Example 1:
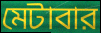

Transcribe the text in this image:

মেটাবার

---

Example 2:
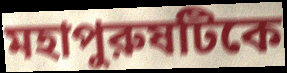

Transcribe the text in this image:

মহাপুরুষটিকে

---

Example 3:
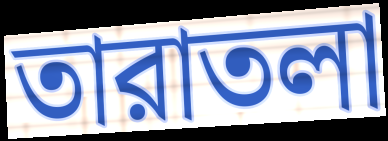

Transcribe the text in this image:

তারাতলা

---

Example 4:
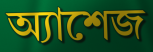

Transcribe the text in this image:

অ্যাশেজ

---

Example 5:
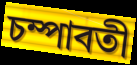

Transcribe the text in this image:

চম্পাবতী